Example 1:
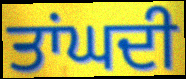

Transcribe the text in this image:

ਤਾਂਘਦੀ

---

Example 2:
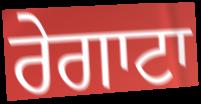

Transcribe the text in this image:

ਰੇਗਾਟਾ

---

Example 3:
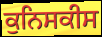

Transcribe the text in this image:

ਕੁਨਿਸਕੀਸ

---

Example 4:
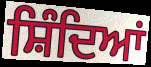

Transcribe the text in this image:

ਸ਼ਿੰਦਿਆਂ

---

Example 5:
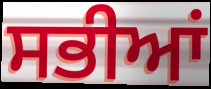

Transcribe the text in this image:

ਸਭੀਆਂ